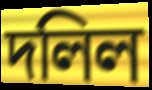
দলিল